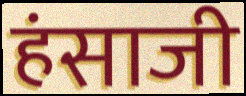
हंसाजी